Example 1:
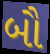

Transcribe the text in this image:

બૌ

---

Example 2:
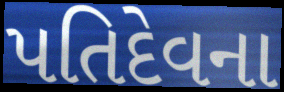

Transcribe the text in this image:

પતિદેવના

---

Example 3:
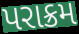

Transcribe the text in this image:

પરાક્રમ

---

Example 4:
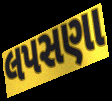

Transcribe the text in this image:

લપસણા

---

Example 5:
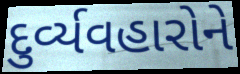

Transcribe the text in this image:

દુર્વ્યવહારોને